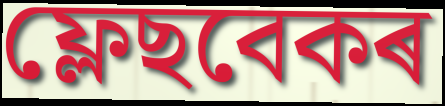
ফ্লেছবেকৰ